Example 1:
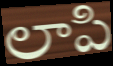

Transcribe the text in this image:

లాపి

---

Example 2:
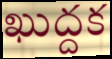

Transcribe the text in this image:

ఖుద్దక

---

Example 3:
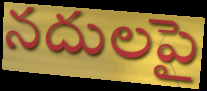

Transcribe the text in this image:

నదులపై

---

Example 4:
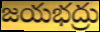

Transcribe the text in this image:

జయభద్రు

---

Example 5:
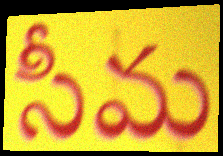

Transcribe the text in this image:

సీమ